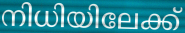
നിധിയിലേക്ക്